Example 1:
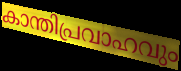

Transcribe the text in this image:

കാന്തിപ്രവാഹവും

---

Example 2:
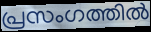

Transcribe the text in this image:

പ്രസംഗത്തിൽ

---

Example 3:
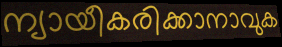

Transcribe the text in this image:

ന്യായീകരിക്കാനാവുക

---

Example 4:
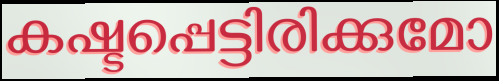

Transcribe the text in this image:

കഷ്ടപ്പെട്ടിരിക്കുമോ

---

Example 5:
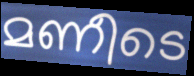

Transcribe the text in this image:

മണീടെ